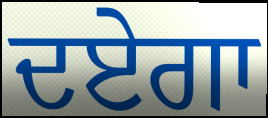
ਦਏਗਾ